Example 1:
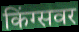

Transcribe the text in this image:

किंग्सवर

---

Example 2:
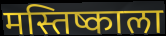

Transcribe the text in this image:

मस्तिष्काला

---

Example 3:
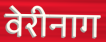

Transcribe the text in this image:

वेरीनाग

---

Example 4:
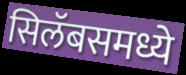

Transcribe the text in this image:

सिलॅबसमध्ये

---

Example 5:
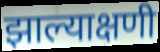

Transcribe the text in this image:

झाल्याक्षणी